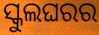
ସ୍କୁଲଘରର